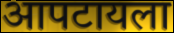
आपटायला